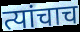
त्यांचाच